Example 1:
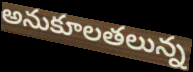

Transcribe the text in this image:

అనుకూలతలున్న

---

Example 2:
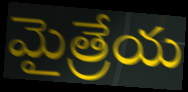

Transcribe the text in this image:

మైత్రేయ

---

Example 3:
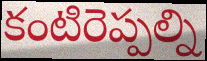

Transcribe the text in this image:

కంటిరెప్పల్ని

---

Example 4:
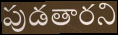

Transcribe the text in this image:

పుడతారని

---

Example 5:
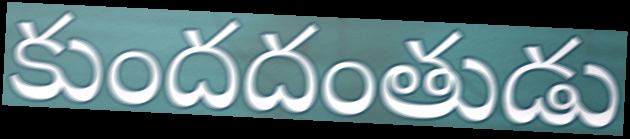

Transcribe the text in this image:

కుందదంతుడు